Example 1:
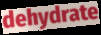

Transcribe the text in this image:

dehydrate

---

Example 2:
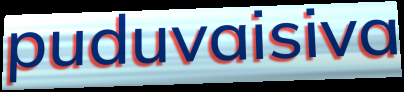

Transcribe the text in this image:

puduvaisiva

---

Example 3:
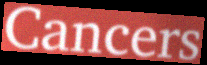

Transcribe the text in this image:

Cancers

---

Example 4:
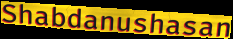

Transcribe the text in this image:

Shabdanushasan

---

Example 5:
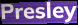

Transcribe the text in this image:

Presley